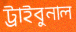
ট্রাইবুনাল